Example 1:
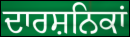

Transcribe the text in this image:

ਦਾਰਸ਼ਨਿਕਾਂ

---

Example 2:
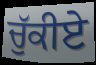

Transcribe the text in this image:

ਚੁੱਕੀਏ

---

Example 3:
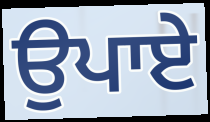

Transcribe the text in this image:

ਉਪਾਏ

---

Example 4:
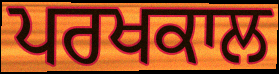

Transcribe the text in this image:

ਪਰਖਕਾਲ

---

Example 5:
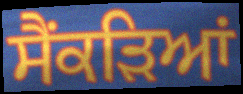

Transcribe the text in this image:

ਸੈਂਕੜਿਆਂ